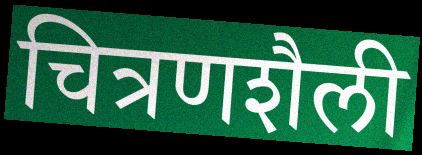
चित्रणशैली